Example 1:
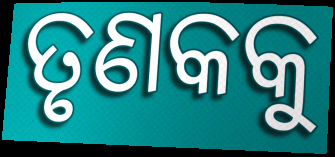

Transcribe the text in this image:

ତୃଣକକୁ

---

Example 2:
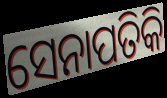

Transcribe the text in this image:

ସେନାପତିକି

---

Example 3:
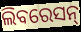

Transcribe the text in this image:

ଲିବରେସନ୍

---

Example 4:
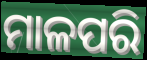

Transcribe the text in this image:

ମାଳପରି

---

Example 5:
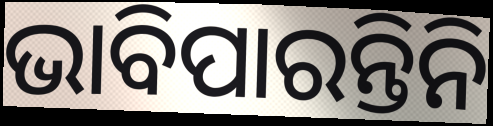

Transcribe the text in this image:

ଭାବିପାରନ୍ତିନି